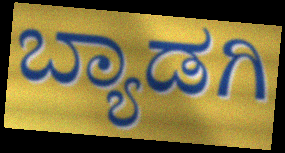
ಬ್ಯಾಡಗಿ